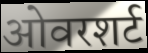
ओवरशर्ट